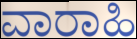
ವಾರಾಹಿ